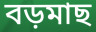
বড়মাছ